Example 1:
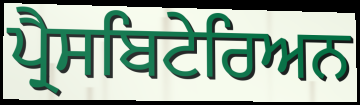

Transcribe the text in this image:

ਪ੍ਰੈਸਬਿਟੇਰਿਅਨ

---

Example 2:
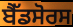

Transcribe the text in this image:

ਬੈੱਡਸੋਰਸ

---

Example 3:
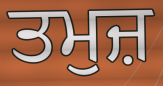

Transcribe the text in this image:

ਤਮੁਜ਼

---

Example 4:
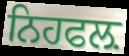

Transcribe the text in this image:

ਨਿਹਫਲ਼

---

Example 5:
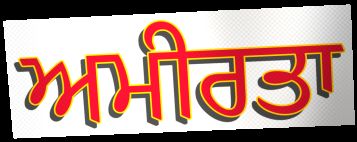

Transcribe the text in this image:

ਅਮੀਰਤਾ